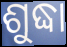
ଶୁଦ୍ଧା